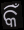
କିଁ